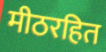
मीठरहित